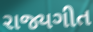
રાજ્યગીત